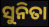
ସୁନିତା